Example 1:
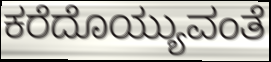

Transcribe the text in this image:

ಕರೆದೊಯ್ಯುವಂತೆ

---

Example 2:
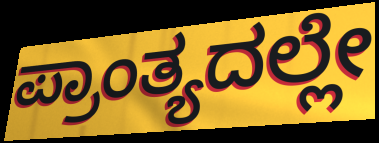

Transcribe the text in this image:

ಪ್ರಾಂತ್ಯದಲ್ಲೇ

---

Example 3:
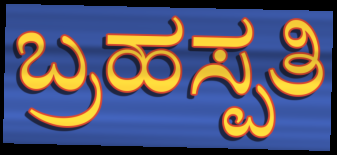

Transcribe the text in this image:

ಬ್ರಹಸ್ಪತಿ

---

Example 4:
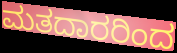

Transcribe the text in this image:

ಮತದಾರರಿಂದ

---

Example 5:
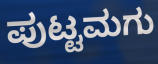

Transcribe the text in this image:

ಪುಟ್ಟಮಗು